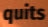
quits